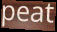
peat